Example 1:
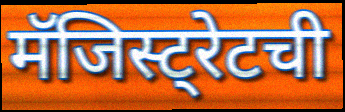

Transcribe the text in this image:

मॅजिस्ट्रेटची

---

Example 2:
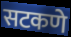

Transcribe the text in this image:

सटकणे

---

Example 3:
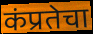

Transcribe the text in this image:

कंप्रतेचा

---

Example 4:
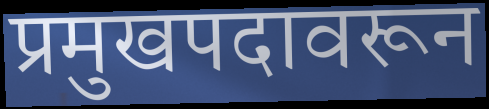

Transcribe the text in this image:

प्रमुखपदावरून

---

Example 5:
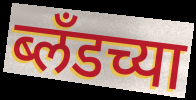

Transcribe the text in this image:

ब्लँडच्या